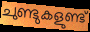
ചുണ്ടുകളുണ്ട്